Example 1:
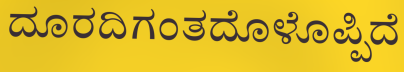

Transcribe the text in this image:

ದೂರದಿಗಂತದೊಳೊಪ್ಪಿದೆ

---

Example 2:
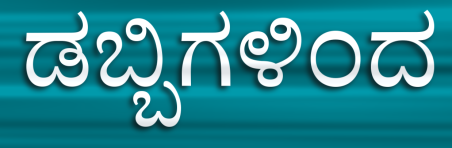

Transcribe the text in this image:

ಡಬ್ಬಿಗಳಿಂದ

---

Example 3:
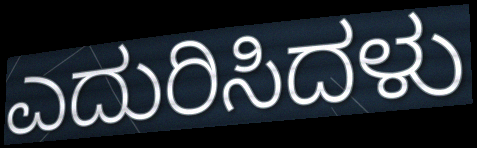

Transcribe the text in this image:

ಎದುರಿಸಿದಳು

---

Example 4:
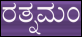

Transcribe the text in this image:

ರತ್ನಮಂ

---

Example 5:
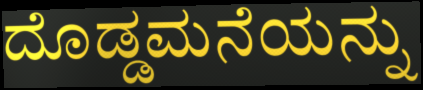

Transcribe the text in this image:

ದೊಡ್ಡಮನೆಯನ್ನು